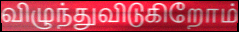
விழுந்துவிடுகிறோம்